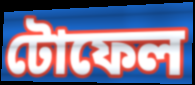
টোফেল